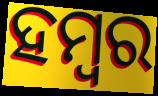
ହମ୍ବର